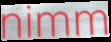
nimm